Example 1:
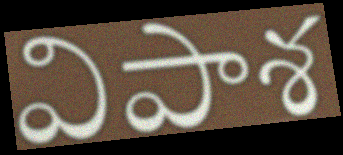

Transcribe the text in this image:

విపాశ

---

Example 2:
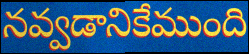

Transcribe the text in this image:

నవ్వడానికేముంది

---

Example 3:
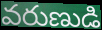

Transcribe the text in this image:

వరుణుడి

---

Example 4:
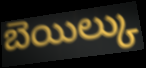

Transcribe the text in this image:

బెయిల్కు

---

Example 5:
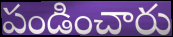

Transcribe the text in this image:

పండించారు